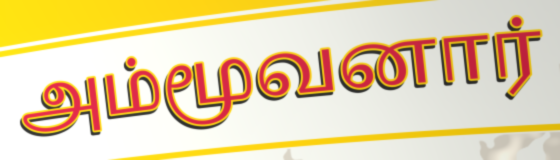
அம்மூவனார்